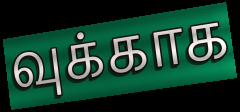
வுக்காக